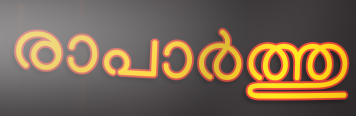
രാപാർത്തു